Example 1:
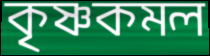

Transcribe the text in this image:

কৃষ্ণকমল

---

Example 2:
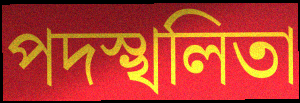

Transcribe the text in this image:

পদস্খলিতা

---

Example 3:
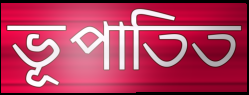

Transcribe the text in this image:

ভূপাতিত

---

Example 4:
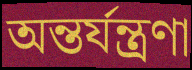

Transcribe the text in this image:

অন্তর্যন্ত্রণা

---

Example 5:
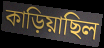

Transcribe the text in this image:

কাড়িয়াছিল